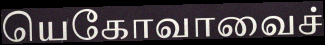
யெகோவாவைச்